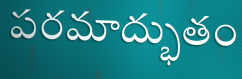
పరమాద్భుతం